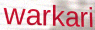
warkari